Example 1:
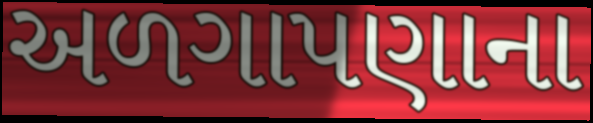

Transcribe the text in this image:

અળગાપણાના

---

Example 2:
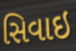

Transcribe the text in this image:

સિવાઇ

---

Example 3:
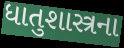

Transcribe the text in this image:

ધાતુશાસ્ત્રના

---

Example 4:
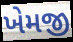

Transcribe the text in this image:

ખેમજી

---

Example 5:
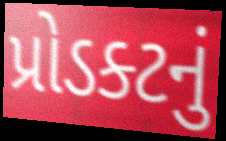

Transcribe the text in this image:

પ્રોડક્ટનું